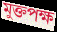
মুক্তপক্ষ